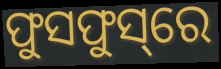
ଫୁସଫୁସ୍‌ରେ